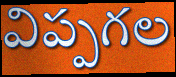
విప్పగల